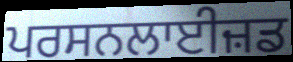
ਪਰਸਨਲਾਈਜ਼ਡ